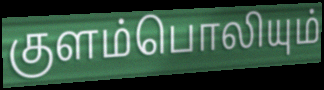
குளம்பொலியும்